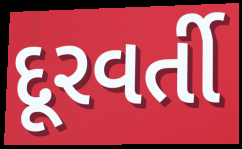
દૂરવર્તી